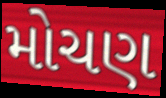
મોચણ